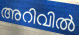
അറിവിൽ